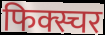
फिक्स्चर